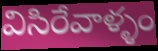
విసిరేవాళ్ళం